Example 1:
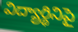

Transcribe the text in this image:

విద్యార్థినిపై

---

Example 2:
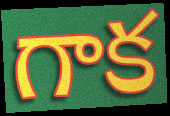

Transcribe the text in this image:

గాక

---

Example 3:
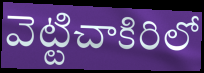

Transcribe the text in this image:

వెట్టిచాకిరిలో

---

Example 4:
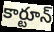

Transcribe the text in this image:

కార్టూన్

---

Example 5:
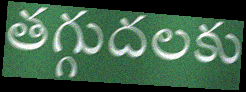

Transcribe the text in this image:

తగ్గుదలకు